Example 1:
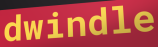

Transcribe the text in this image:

dwindle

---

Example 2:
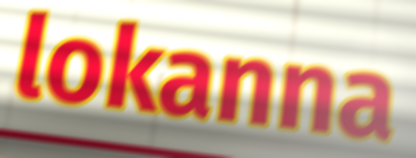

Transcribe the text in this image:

lokanna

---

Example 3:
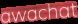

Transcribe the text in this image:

awachat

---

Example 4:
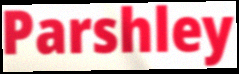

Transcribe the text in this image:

Parshley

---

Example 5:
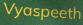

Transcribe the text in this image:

Vyaspeeth